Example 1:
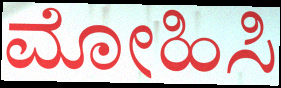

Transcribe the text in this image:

ಮೋಹಿಸಿ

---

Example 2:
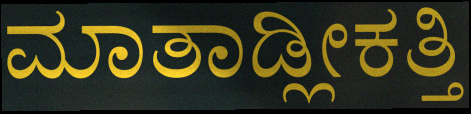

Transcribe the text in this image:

ಮಾತಾಡ್ಲೀಕತ್ತಿ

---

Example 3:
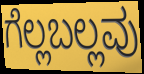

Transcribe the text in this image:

ಗೆಲ್ಲಬಲ್ಲವು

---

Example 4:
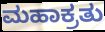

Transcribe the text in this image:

ಮಹಾಕ್ರತು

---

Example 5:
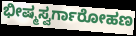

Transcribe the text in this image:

ಭೀಷ್ಮಸ್ವರ್ಗಾರೋಹಣ